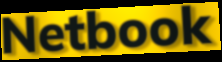
Netbook